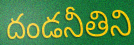
దండనీతిని